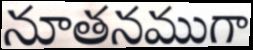
నూతనముగా